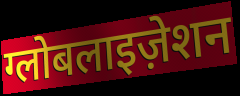
ग्लोबलाइज़ेशन